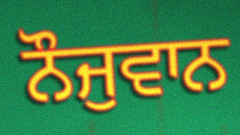
ਨੌਜੁਵਾਨ